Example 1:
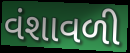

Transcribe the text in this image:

વંશાવળી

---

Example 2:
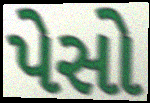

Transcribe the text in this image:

પેસો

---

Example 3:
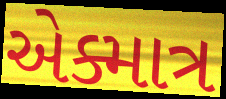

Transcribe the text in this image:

એક્માત્ર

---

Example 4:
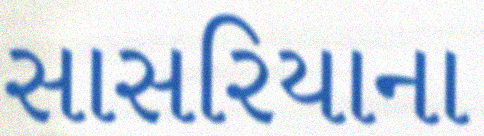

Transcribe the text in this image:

સાસરિયાના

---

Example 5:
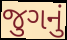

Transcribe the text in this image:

જુગનું